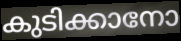
കുടിക്കാനോ